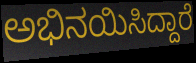
ಅಭಿನಯಿಸಿದ್ದಾರೆ